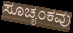
ಸೂಚ್ಯಂಕವು